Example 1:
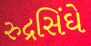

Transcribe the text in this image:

રુદ્રસિંઘે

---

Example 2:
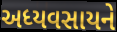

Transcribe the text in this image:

અધ્યવસાયને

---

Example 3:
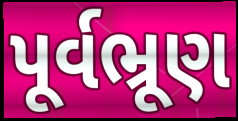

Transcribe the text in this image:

પૂર્વભ્રૂણ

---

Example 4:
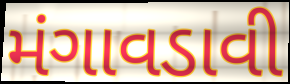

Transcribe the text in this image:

મંગાવડાવી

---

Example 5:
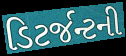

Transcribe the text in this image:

ડિટર્જન્ટની